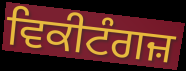
ਵਿਕੀਟੰਗਜ਼